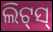
ଲିଟ୍‌ସ୍